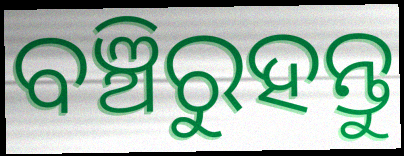
ବଞ୍ଚିରୁହନ୍ତୁ